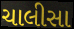
ચાલીસા